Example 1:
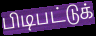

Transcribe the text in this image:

பிடிபட்டுக்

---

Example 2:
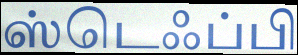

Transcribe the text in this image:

ஸ்டெஃப்பி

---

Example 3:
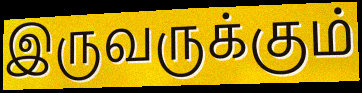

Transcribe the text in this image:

இருவருக்கும்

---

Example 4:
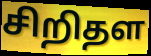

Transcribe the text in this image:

சிறிதள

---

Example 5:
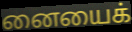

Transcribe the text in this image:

னையைக்